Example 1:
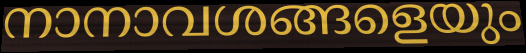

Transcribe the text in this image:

നാനാവശങ്ങളെയും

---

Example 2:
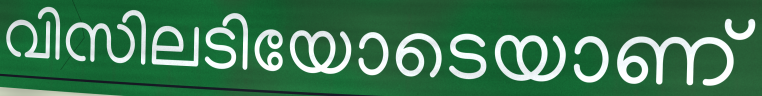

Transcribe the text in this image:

വിസിലടിയോടെയാണ്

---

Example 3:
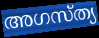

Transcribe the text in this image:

അഗസ്ത്യ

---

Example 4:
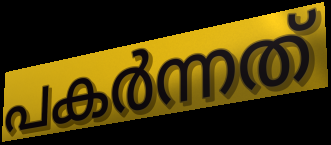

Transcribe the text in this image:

പകർന്നത്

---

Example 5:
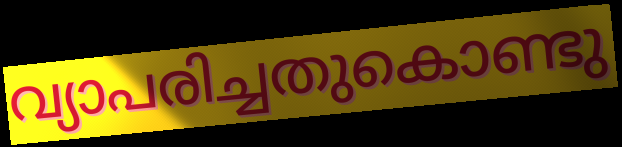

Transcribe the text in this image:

വ്യാപരിച്ചതുകൊണ്ടു